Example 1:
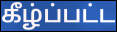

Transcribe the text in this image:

கீழ்ப்பட்ட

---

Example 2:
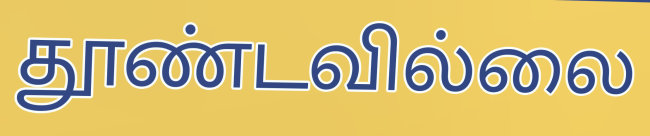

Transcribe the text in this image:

தூண்டவில்லை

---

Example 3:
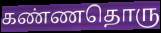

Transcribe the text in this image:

கண்ணதொரு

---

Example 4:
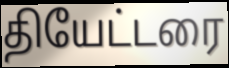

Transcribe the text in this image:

தியேட்டரை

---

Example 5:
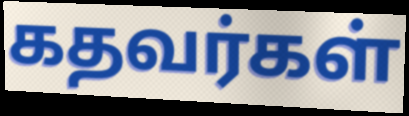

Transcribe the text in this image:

கதவர்கள்